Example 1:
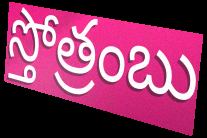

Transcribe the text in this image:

స్తోత్రంబు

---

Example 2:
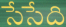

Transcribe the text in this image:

సేసేది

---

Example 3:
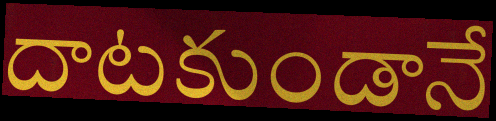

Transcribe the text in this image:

దాటకుండానే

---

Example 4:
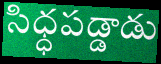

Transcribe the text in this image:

సిధ్ధపడ్డాడు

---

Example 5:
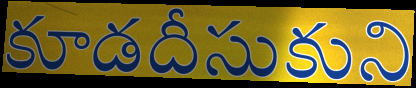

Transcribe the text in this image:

కూడదీసుకుని